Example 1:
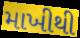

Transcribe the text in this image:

માખીથી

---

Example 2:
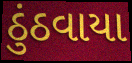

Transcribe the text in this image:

ઠુંઠવાયા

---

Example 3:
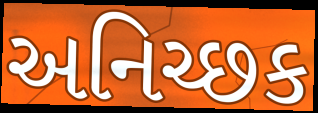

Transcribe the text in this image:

અનિચ્છક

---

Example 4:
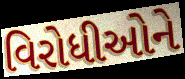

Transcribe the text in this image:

વિરોધીઓને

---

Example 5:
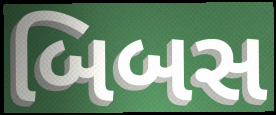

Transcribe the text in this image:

બિબસ